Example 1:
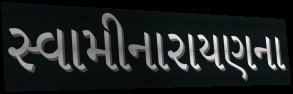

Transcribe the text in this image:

સ્વામીનારાયણના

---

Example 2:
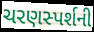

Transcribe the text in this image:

ચરણસ્પર્શની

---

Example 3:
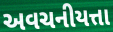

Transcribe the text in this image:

અવચનીયત્તા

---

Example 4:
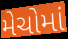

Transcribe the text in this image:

મેચોમાં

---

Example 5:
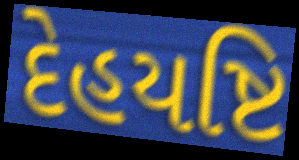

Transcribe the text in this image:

દેહયષ્ટિ